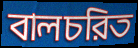
বালচরিত